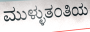
ಮುಳ್ಳುತಂತಿಯ